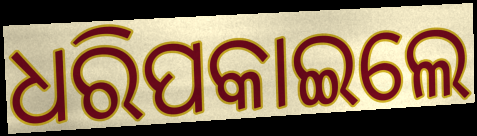
ଧରିପକାଇଲେ